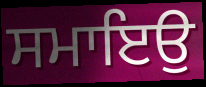
ਸਮਾਇਉ